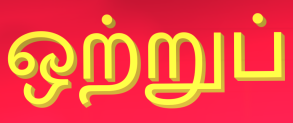
ஒற்றுப்